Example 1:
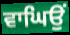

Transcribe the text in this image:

ਵਾਘਿਉਂ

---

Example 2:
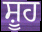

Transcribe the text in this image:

ਸ਼ੂਹ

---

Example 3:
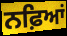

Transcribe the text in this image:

ਨਫ਼ਿਆਂ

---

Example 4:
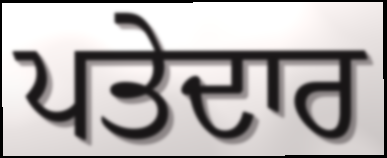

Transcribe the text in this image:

ਪਤੇਦਾਰ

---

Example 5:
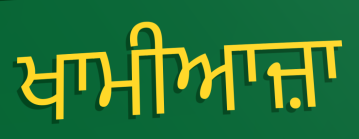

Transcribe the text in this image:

ਖਾਮੀਆਜ਼ਾ